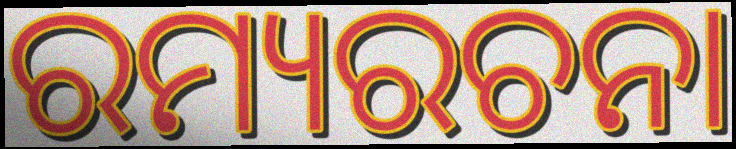
ରମ୍ୟରଚନା